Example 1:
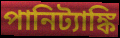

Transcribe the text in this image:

পানিট্যাঙ্কি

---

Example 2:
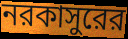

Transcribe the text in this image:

নরকাসুরের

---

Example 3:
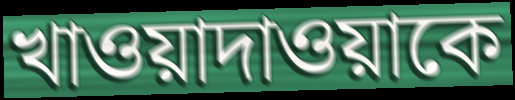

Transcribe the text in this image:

খাওয়াদাওয়াকে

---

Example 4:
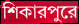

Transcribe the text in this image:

শিকারপুরে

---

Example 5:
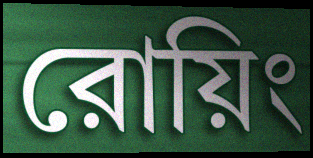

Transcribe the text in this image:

রোয়িং